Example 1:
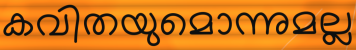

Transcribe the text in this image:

കവിതയുമൊന്നുമല്ല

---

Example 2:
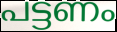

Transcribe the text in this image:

പട്ടണം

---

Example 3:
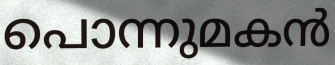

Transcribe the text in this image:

പൊന്നുമകൻ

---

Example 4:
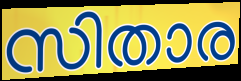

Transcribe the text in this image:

സിതാര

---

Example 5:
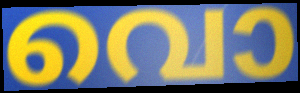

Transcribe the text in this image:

വൊ